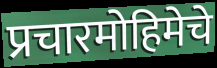
प्रचारमोहिमेचे